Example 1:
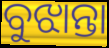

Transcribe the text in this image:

ବୁଝାନ୍ତା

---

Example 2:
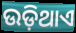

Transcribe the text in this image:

ଉଡ଼ିଥାଏ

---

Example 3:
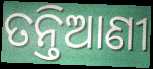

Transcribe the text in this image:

ତନ୍ତିଆଣୀ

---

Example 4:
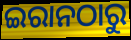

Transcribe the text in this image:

ଇରାନଠାରୁ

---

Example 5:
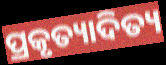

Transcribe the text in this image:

ପ୍ରକୃତ୍ୟାଦିତ୍ୟ